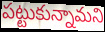
పట్టుకున్నామని